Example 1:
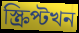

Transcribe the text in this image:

স্ক্ৰিপ্টখন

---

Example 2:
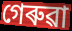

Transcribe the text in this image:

গেৰুৱা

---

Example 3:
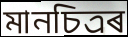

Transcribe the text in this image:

মানচিত্ৰৰ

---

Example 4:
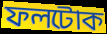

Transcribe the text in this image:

ফলটোক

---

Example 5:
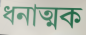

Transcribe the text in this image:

ধনাত্মক